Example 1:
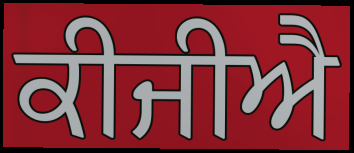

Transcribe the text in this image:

ਕੀਜੀਐ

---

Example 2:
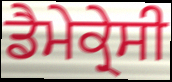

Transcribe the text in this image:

ਡੈਮੇਕ੍ਰੇਸੀ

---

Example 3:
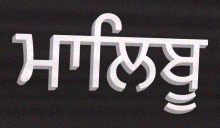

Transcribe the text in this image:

ਮਾਲਿਬੂ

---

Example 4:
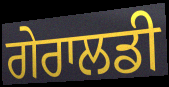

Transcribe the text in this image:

ਗੇਰਾਲਡੀ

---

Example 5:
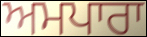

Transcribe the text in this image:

ਅਮਪਾਰਾ